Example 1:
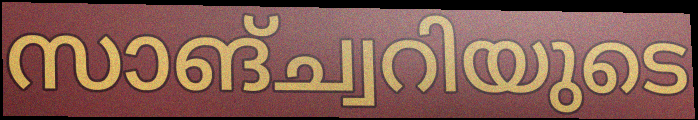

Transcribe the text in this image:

സാങ്ച്വറിയുടെ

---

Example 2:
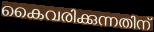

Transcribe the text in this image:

കൈവരിക്കുന്നതിന്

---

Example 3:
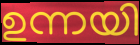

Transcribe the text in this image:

ഉന്നയി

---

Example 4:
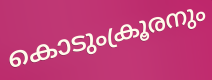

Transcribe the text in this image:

കൊടുംക്രൂരനും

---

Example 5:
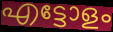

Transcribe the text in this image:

എട്ടോളം